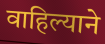
वाहिल्याने